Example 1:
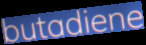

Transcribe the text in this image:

butadiene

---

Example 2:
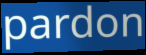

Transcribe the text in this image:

pardon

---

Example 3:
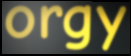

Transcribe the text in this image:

orgy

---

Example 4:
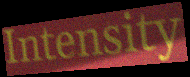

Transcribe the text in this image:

Intensity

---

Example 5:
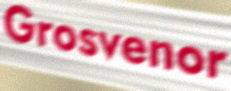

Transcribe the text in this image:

Grosvenor